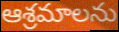
ఆశ్రమాలను